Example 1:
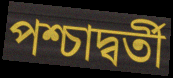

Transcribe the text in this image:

পশ্চাদ্বর্তী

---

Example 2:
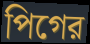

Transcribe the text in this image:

পিগের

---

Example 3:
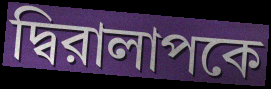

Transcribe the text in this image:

দ্বিরালাপকে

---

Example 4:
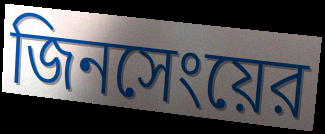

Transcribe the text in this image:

জিনসেংয়ের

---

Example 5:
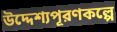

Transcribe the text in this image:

উদ্দেশ্যপূরণকল্পে